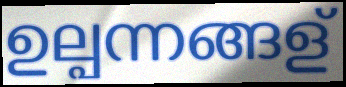
ഉല്പന്നങ്ങള്